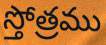
స్తోత్రము